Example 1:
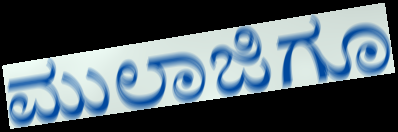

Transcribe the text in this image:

ಮುಲಾಜಿಗೂ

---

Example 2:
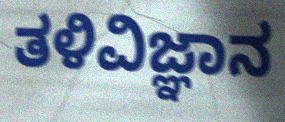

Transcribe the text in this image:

ತಳಿವಿಜ್ಞಾನ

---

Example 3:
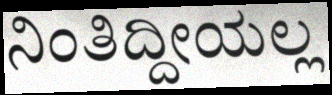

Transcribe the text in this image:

ನಿಂತಿದ್ದೀಯಲ್ಲ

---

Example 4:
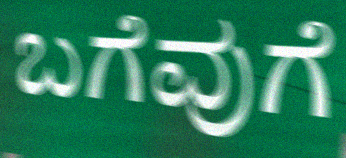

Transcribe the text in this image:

ಬಗೆವುಗೆ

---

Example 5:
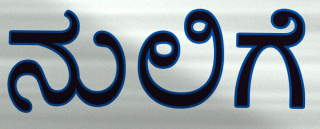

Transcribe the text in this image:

ನುಲಿಗೆ